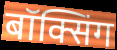
बॉक्सिंग